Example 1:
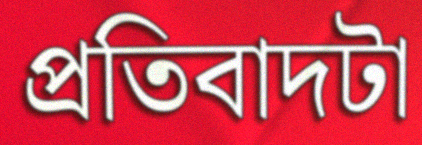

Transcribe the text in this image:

প্রতিবাদটা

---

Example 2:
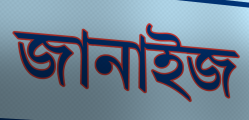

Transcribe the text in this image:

জানাইজ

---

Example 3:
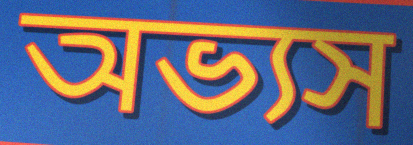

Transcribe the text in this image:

অভ্যস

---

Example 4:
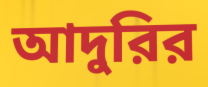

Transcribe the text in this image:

আদুরির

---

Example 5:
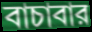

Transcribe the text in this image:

বাচাবার